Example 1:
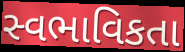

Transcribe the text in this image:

સ્વભાવિકતા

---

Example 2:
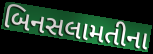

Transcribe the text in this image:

બિનસલામતીના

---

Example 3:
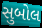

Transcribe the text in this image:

સુબોલ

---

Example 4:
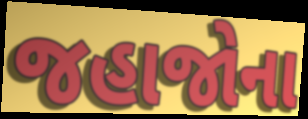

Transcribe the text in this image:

જહાજોના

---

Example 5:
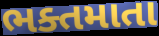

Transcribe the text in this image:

ભક્તમાતા